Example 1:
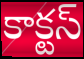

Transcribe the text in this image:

కాక్టస్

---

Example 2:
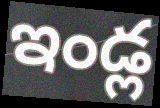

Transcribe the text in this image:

ఇండ్ల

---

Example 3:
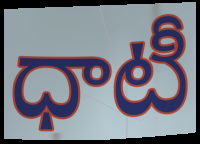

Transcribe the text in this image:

ధాటీ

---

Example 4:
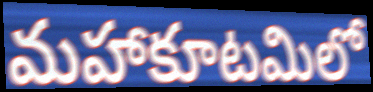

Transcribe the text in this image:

మహాకూటమిలో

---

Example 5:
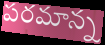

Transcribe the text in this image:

పరమాన్న